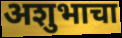
अशुभाचा